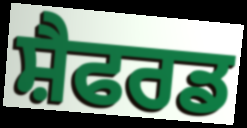
ਸ਼ੈਫਰਡ